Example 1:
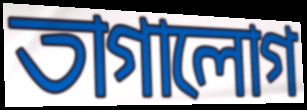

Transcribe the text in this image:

তাগালোগ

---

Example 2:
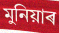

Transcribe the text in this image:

মুনিয়াৰ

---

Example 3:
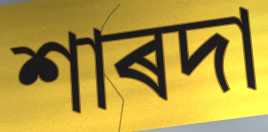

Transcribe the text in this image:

শাৰদা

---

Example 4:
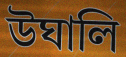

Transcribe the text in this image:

উঘালি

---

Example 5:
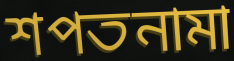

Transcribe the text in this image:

শপতনামা